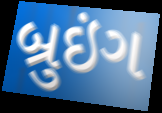
બ્રુઇંગ